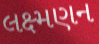
લક્ષ્મણન